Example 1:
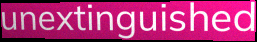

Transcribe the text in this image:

unextinguished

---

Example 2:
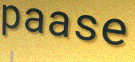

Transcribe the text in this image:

paase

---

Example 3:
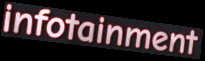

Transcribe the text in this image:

infotainment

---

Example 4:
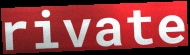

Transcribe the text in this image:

rivate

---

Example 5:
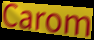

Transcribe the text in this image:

Carom